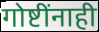
गोष्टींनाही